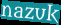
nazuk